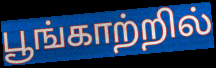
பூங்காற்றில்